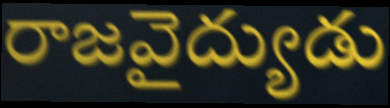
రాజవైద్యుడు